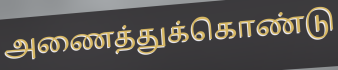
அணைத்துக்கொண்டு